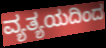
ವ್ಯತ್ಯಯದಿಂದ